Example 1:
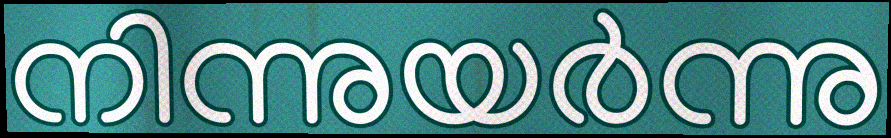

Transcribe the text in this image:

നിന്നുയർന്നു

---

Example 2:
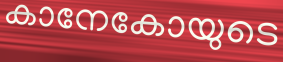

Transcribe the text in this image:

കാനേകോയുടെ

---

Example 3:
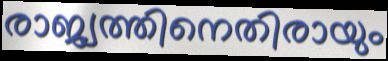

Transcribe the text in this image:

രാജ്യത്തിനെതിരായും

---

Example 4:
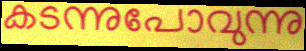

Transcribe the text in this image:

കടന്നുപോവുന്നു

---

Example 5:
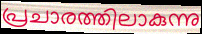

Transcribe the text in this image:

പ്രചാരത്തിലാകുന്നു